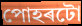
পোহৰটো